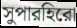
সুপারহিরো